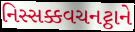
નિસ્સક્કવચનટ્ઠાને